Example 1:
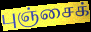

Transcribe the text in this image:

புஞ்சைக்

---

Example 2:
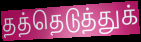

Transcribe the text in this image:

தத்தெடுத்துக்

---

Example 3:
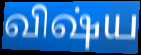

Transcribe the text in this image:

விஷ்ய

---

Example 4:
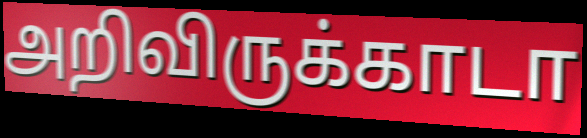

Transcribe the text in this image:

அறிவிருக்காடா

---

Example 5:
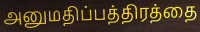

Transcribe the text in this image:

அனுமதிப்பத்திரத்தை